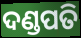
ଦଣ୍ଡପତି